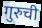
गुरुची